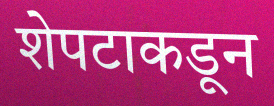
शेपटाकडून